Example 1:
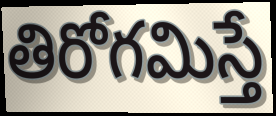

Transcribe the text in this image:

తిరోగమిస్తే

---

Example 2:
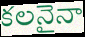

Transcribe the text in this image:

కలనైనా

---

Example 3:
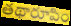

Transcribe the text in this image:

తథారూపిం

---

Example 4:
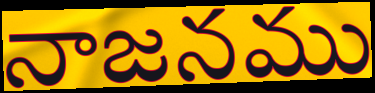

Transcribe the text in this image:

నాజనము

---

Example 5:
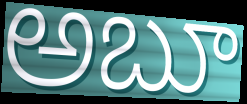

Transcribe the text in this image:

అబూ